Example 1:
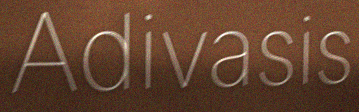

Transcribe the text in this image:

Adivasis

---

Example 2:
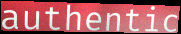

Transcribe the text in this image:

authentic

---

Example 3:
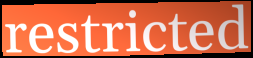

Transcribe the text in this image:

restricted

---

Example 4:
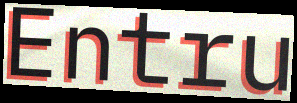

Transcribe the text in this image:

Entru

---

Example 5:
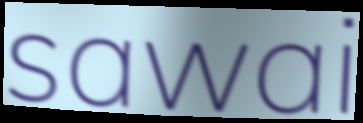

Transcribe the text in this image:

sawai